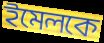
ইমেলকে